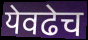
येवढेच